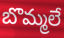
బొమ్మలే